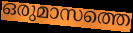
ഒരുമാസത്തെ